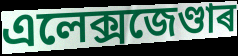
এলেক্সজেণ্ডাৰ